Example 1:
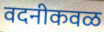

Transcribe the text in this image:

वदनीकवळ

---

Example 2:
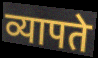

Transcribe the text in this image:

व्यापते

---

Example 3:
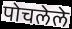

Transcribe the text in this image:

पोचलेले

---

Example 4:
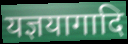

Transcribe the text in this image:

यज्ञयागादि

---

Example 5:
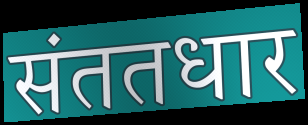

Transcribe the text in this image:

संततधार